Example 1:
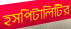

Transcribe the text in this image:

হসপিটালিটির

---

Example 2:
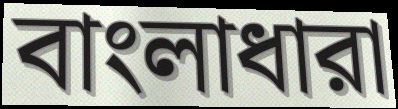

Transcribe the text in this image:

বাংলাধারা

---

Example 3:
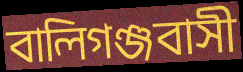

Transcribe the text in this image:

বালিগঞ্জবাসী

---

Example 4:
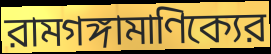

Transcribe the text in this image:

রামগঙ্গামাণিক্যের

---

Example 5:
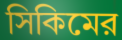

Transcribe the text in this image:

সিকিমের